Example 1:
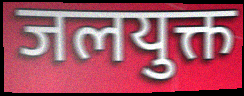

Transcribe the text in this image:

जलयुक्त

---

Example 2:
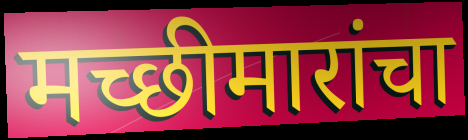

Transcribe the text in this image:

मच्छीमारांचा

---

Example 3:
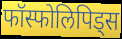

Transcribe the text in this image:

फॉस्फोलिपिड्स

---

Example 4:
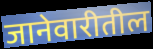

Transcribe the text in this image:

जानेवारीतील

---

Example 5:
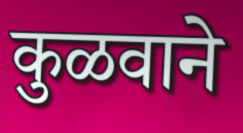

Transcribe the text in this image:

कुळवाने